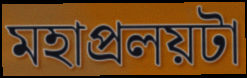
মহাপ্রলয়টা